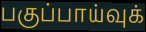
பகுப்பாய்வுக்